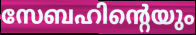
സേബഹിന്റെയും